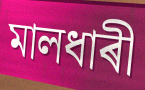
মালধাৰী